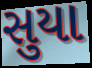
સુયા